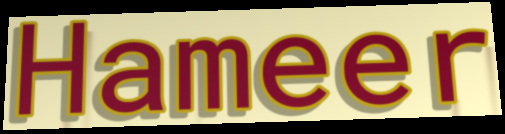
Hameer